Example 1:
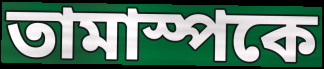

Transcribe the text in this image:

তামাস্পকে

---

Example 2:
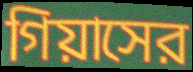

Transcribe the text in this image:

গিয়াসের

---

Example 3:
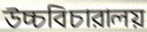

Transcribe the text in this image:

উচ্চবিচারালয়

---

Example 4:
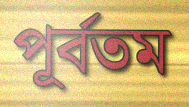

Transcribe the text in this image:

পূর্বতম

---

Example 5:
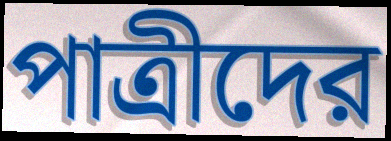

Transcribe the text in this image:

পাত্রীদের